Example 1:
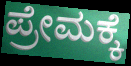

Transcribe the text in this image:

ಪ್ರೇಮಕ್ಕೆ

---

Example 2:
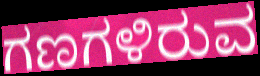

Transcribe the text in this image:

ಗಣಗಳಿರುವ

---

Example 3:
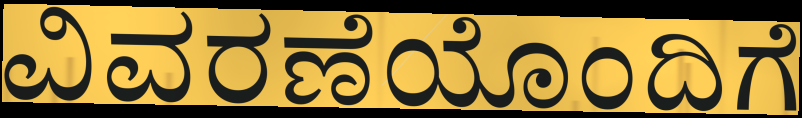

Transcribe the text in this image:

ವಿವರಣೆಯೊಂದಿಗೆ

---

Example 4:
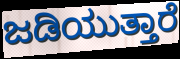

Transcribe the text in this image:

ಜಡಿಯುತ್ತಾರೆ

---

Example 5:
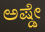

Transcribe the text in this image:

ಅಷ್ಡೇ